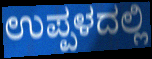
ಉಪ್ಪಳದಲ್ಲಿ